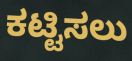
ಕಟ್ಟಿಸಲು